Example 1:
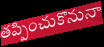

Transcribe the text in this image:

తప్పించుకొనునా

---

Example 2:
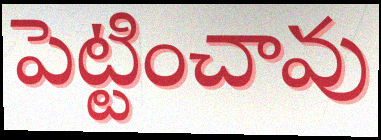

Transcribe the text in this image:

పెట్టించావు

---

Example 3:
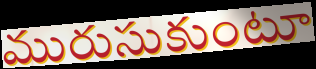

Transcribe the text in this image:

మురుసుకుంటూ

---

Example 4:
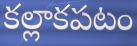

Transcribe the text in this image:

కల్లాకపటం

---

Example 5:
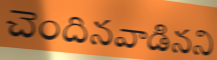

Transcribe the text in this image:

చెందినవాడినని